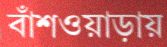
বাঁশওয়াড়ায়